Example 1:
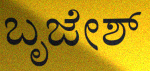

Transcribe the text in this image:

ಬೃಜೇಶ್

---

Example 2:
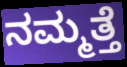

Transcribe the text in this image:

ನಮ್ಮತ್ತೆ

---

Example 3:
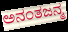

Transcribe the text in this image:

ಅನಂತಜನ್ಮ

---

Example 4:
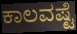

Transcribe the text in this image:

ಕಾಲವಷ್ಟೆ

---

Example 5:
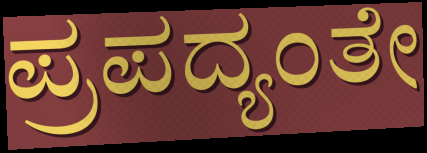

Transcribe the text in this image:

ಪ್ರಪದ್ಯಂತೇ